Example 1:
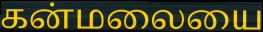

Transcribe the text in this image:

கன்மலையை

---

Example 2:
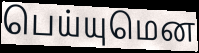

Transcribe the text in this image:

பெய்யுமென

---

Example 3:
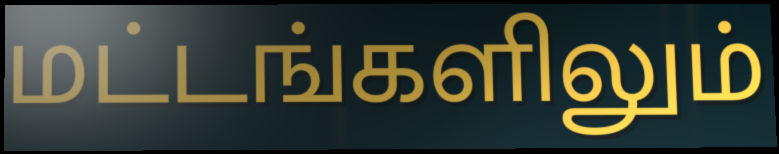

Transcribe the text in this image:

மட்டங்களிலும்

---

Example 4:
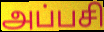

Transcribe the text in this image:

அப்பசி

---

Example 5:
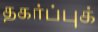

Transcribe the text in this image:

தகர்ப்புக்